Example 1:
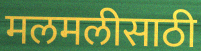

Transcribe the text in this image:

मलमलीसाठी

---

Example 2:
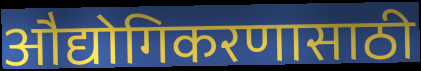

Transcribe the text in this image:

औद्योगिकरणासाठी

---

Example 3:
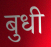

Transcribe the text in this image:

बुधी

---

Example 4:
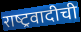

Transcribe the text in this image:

राष्ट्रवादीची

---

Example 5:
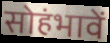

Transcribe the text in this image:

सोहंभावें